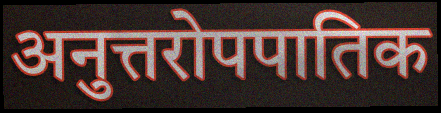
अनुत्तरोपपातिक